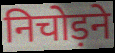
निचोड़ने